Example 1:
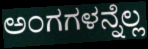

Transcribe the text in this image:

ಅಂಗಗಳನ್ನೆಲ್ಲ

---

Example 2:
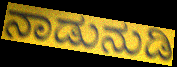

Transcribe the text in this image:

ನಾಡುನುಡಿ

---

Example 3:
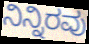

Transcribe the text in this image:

ನಿನ್ನಿರವು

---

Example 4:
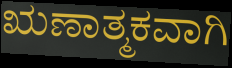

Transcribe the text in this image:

ಋಣಾತ್ಮಕವಾಗಿ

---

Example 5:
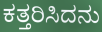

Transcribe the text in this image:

ಕತ್ತರಿಸಿದನು